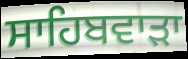
ਸਾਹਿਬਵਾੜਾ